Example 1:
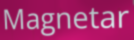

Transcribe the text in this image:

Magnetar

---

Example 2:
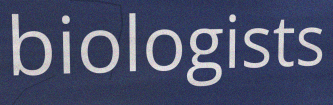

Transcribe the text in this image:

biologists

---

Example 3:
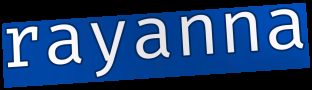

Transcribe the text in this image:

rayanna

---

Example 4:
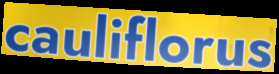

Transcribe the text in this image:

cauliflorus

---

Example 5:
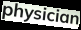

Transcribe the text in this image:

physician